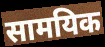
सामयिक